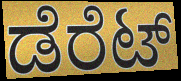
ಡೆರೆಟ್